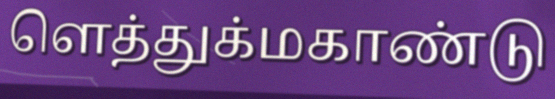
ளெத்துக்மகாண்டு